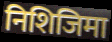
निशिजिमा